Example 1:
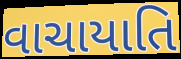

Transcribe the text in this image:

વાચાયાતિ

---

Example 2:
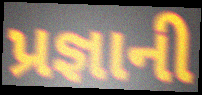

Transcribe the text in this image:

પ્રજ્ઞાની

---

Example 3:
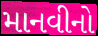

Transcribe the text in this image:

માનવીનો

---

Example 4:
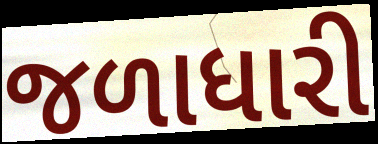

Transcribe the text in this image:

જળાધારી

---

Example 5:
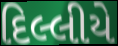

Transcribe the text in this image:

દિલ્લીયે